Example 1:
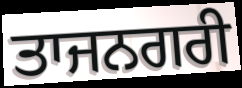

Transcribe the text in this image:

ਤਾਜਨਗਰੀ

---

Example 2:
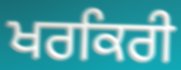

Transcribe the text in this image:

ਖਰਕਿਰੀ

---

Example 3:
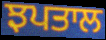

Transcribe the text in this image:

ਝਪਤਾਲ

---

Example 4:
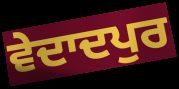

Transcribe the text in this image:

ਵੇਦਾਦਪੁਰ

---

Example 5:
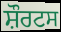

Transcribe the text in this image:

ਸ਼ੌਰਟਸ